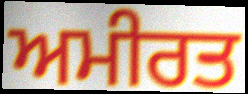
ਅਮੀਰਤ